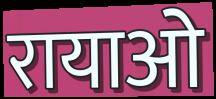
रायाओ